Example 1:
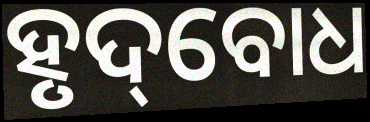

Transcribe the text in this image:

ହୃଦ୍‌ବୋଧ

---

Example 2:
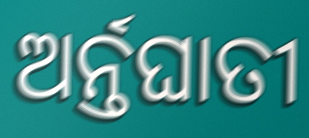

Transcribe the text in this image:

ଅର୍ନ୍ତଘାତୀ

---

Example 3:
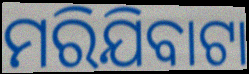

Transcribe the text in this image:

ମରିଯିବାଟା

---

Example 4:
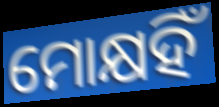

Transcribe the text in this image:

ମୋକ୍ଷହିଁ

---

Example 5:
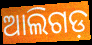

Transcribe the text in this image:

ଆଲିଗଡ଼